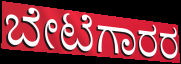
ಬೇಟೆಗಾರರ